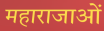
महाराजाओं